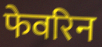
फेवरिन